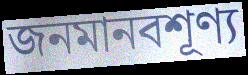
জনমানবশূণ্য